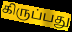
கிருப்பது